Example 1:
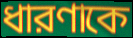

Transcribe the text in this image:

ধারণাকে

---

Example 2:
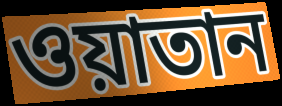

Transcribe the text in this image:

ওয়াতান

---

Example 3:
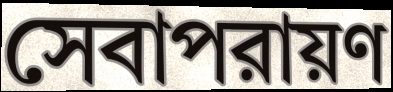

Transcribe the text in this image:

সেবাপরায়ণ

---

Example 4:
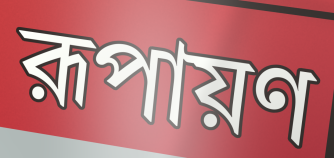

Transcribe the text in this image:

রূপায়ণ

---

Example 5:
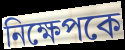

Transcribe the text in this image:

নিক্ষেপকে